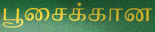
பூசைக்கான